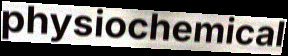
physiochemical